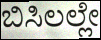
ಬಿಸಿಲಲ್ಲೇ